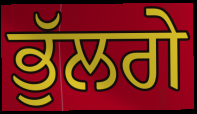
ਭੁੱਲਗੇ